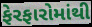
ફેરફારોમાંથી